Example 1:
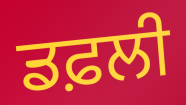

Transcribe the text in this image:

ਡਫ਼ਲੀ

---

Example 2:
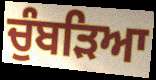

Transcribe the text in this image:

ਚੁੰਬੜਿਆ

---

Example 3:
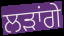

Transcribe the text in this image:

ਲੜਾਂਗੇ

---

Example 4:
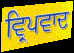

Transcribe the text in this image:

ਵ੍ਰਿਪਵਾਦ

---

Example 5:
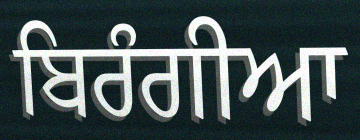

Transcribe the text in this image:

ਬਿਰੰਗੀਆ